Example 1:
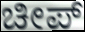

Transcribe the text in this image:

ಚೀಪ್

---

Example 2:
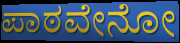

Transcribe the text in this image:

ಪಾಠವೇನೋ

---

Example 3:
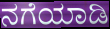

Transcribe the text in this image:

ನಗೆಯಾಡಿ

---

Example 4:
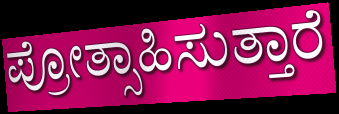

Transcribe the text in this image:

ಪ್ರೋತ್ಸಾಹಿಸುತ್ತಾರೆ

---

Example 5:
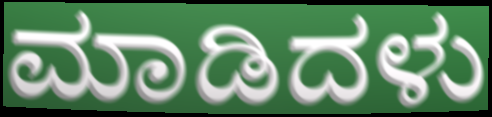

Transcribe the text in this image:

ಮಾಡಿದಳು